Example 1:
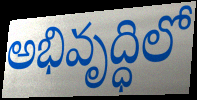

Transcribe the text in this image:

అభివృద్ధిలో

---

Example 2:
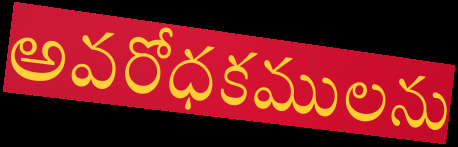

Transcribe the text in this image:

అవరోధకములను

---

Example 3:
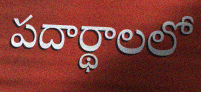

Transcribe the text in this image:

పదార్థాలలో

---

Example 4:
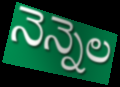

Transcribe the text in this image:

నెన్నెల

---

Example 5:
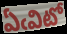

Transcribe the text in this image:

ఏఁవిటో